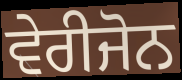
ਵੇਰੀਜੋਨ